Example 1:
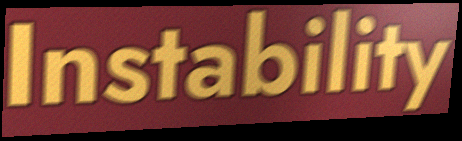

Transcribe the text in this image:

Instability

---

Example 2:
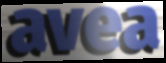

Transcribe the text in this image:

avea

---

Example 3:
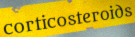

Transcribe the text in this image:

corticosteroids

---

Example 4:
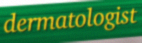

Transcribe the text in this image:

dermatologist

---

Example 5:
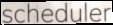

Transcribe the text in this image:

scheduler